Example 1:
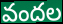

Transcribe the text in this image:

వందల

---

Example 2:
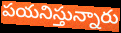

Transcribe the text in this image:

పయనిస్తున్నారు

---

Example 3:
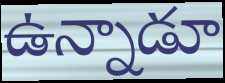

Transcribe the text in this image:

ఉన్నాడూ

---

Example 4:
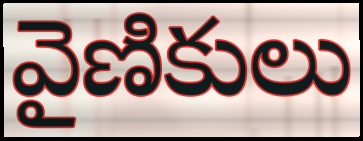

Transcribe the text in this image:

వైణికులు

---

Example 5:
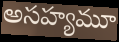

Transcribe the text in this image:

అసహ్యమూ